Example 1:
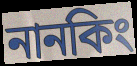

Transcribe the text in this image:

নানকিং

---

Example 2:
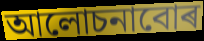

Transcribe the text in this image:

আলোচনাবোৰ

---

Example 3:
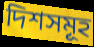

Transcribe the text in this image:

দিশসমূহ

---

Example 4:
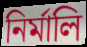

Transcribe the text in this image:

নিৰ্মালি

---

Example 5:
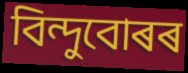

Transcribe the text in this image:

বিন্দুবোৰৰ